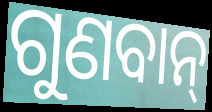
ଗୁଣବାନ୍